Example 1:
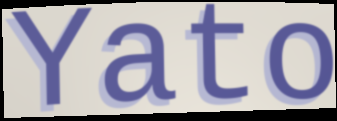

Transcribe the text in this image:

Yato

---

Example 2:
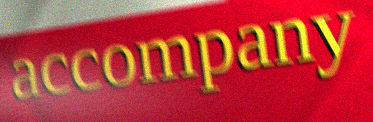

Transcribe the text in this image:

accompany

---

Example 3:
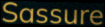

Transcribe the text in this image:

Sassure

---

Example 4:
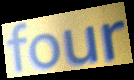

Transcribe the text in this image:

four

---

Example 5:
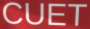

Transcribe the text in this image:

CUET